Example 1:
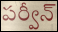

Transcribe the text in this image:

పర్వీన్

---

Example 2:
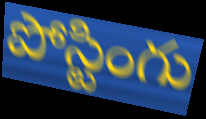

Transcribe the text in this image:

పోస్టింగు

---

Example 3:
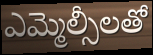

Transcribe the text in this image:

ఎమ్మెల్సీలతో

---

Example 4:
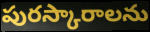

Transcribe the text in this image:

పురస్కారాలను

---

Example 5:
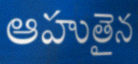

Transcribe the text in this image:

ఆహుతైన